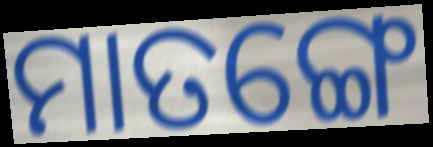
ମାତଙ୍ଗେ